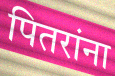
पितरांना